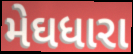
મેઘધારા